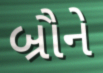
બ્રૌને